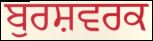
ਬੁਰਸ਼ਵਰਕ